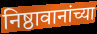
निष्ठावानांच्या